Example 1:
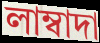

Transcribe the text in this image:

লাম্বাদা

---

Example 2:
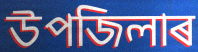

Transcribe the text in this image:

উপজিলাৰ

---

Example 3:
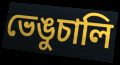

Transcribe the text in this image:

ভেঙুচালি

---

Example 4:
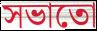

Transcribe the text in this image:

সভাতো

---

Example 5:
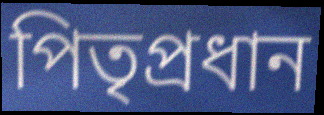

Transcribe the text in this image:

পিতৃপ্ৰধান